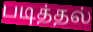
படித்தல்